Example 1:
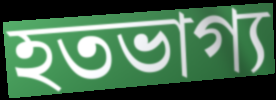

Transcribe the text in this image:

হতভাগ্য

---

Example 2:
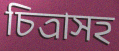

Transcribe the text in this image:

চিত্রাসহ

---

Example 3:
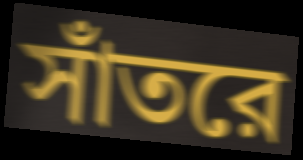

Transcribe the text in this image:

সাঁতরে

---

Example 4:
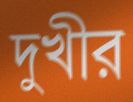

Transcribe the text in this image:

দুখীর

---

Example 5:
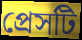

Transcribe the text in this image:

প্রেসটি